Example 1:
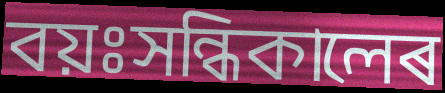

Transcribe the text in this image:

বয়ঃসন্ধিকালেৰ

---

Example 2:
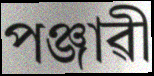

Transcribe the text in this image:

পঞ্জাৱী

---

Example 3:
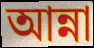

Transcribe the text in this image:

আন্না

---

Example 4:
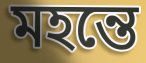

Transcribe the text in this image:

মহন্তে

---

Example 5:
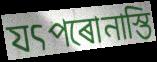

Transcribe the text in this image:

যৎপৰোনাস্তি